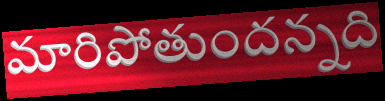
మారిపోతుందన్నది